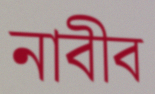
নাবীব